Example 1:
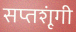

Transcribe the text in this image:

सप्तश्रृंगी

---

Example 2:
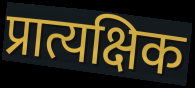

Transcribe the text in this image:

प्रात्यक्षिक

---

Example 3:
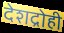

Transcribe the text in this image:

देशद्रोही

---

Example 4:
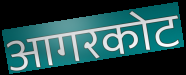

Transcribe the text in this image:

आगरकोट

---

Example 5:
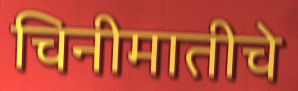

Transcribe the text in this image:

चिनीमातीचे